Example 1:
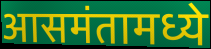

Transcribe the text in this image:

आसमंतामध्ये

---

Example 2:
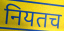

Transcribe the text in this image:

नियतच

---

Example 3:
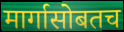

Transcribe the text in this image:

मार्गासोबतच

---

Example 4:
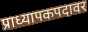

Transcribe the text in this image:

प्राध्यापकपदावर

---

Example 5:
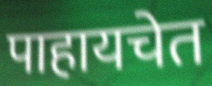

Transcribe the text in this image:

पाहायचेत